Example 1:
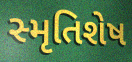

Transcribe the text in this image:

સ્મૃતિશેષ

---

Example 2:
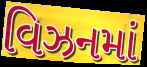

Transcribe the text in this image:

વિઝનમાં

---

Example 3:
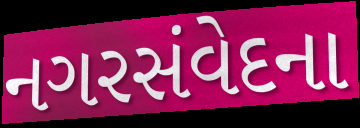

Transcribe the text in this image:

નગરસંવેદના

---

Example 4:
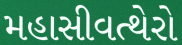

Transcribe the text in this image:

મહાસીવત્થેરો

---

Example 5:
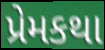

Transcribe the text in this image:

પ્રેમકથા